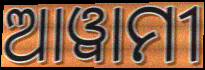
ଆୱାମୀ